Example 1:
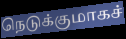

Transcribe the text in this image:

நெடுக்குமாகச்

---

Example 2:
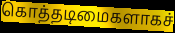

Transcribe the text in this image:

கொத்தடிமைகளாகச்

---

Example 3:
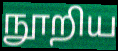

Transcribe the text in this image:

நூறிய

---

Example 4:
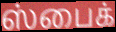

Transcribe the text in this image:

ஸ்பைக்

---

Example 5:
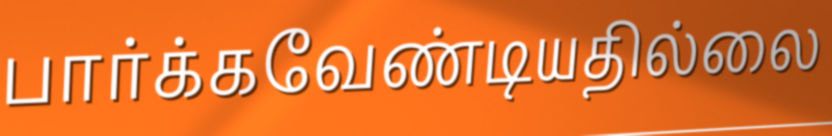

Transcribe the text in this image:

பார்க்கவேண்டியதில்லை